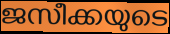
ജസീക്കയുടെ